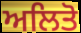
ਅਲਿਤੋ